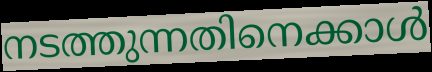
നടത്തുന്നതിനെക്കാൾ